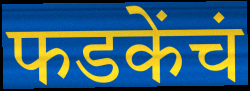
फडकेंचं